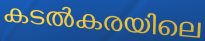
കടൽകരയിലെ